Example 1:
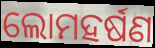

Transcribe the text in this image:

ଲୋମହର୍ଷଣ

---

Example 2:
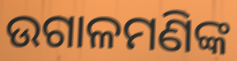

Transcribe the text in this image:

ଉଗାଳମଣିଙ୍କ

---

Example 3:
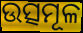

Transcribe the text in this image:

ଉତ୍ସମୂଳ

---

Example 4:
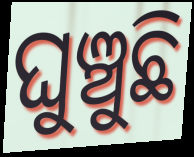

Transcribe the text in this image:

ଘୁଞ୍ଚୁଛି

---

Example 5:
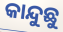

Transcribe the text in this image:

କାନ୍ଦୁଛୁ